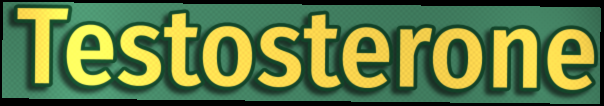
Testosterone